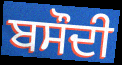
ਬਸੌਦੀ